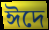
ঈদে